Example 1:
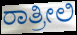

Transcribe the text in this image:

ರಾತ್ರೀಲಿ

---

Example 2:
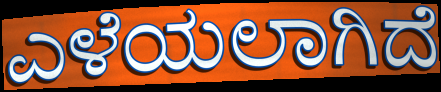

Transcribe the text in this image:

ಎಳೆಯಲಾಗಿದೆ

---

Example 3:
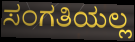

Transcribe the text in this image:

ಸಂಗತಿಯಲ್ಲ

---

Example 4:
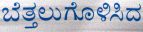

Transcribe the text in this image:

ಬೆತ್ತಲುಗೊಳಿಸಿದ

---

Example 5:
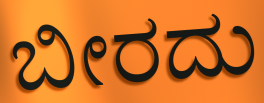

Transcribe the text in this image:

ಬೀರದು